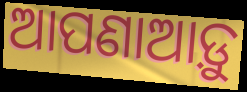
ଆପଣାଆଡ଼ୁ